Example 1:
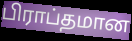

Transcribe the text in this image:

பிராப்தமான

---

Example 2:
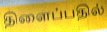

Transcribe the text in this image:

திளைப்பதில்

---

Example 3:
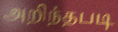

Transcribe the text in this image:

அறிந்தபடி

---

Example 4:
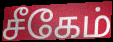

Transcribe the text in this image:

சீகேம்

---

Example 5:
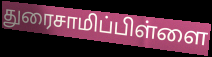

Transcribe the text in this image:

துரைசாமிப்பிள்ளை